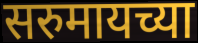
सरुमायच्या